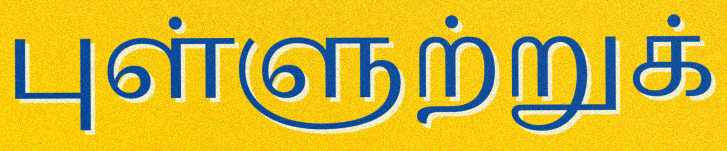
புள்ளுற்றுக்